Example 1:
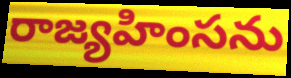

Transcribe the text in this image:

రాజ్యహింసను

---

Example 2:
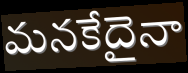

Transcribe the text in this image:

మనకేదైనా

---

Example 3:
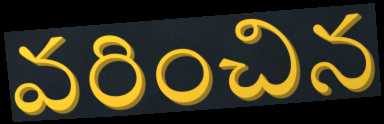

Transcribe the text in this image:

వరించిన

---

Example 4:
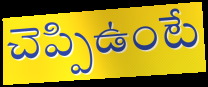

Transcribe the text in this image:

చెప్పిఉంటే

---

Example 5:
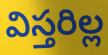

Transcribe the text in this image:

విస్తరిల్ల